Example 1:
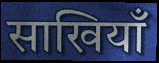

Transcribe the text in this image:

साखियाँ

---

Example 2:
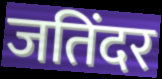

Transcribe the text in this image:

जतिंदर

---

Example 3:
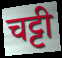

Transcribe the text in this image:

चट्टी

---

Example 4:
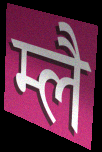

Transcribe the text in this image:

म्लै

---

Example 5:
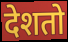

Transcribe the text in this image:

देशतो